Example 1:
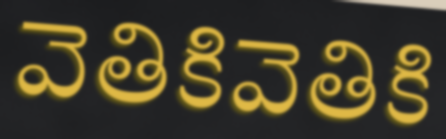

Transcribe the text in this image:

వెతికివెతికి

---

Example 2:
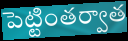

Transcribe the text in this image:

పెట్టింతర్వాత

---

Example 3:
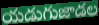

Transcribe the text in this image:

యడుగుజాడల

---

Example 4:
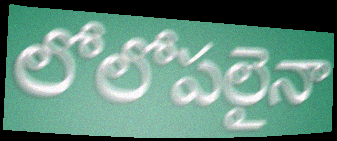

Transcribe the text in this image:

లోలోపలైనా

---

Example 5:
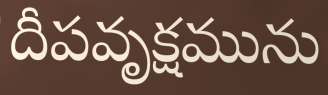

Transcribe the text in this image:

దీపవృక్షమును